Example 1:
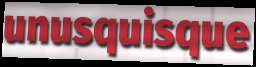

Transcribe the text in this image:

unusquisque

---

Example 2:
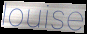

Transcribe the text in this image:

louise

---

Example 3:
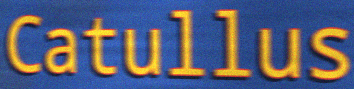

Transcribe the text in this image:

Catullus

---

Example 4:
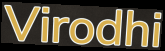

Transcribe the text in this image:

Virodhi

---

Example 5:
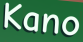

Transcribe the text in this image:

Kano